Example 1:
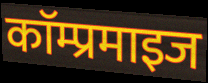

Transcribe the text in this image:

कॉम्प्रमाइज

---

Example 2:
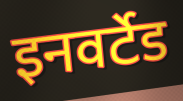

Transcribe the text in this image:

इनवर्टेड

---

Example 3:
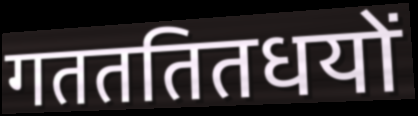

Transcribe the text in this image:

गतततितधयों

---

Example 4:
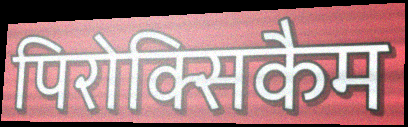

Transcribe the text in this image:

पिरोक्सिकैम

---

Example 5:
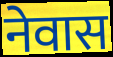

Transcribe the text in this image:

नेवास